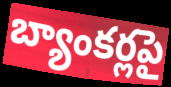
బ్యాంకర్లపై